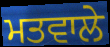
ਮਤਵਾਲੇ